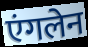
एंगलेन